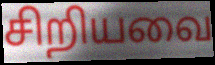
சிறியவை